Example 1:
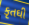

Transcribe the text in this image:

કૃતઘી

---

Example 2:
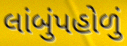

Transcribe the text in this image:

લાંબુંપહોળું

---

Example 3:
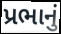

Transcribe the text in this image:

પ્રભાનું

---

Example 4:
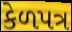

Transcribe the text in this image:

કેળપત્ર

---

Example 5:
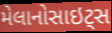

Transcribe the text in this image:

મેલાનોસાઇટ્સ